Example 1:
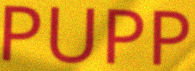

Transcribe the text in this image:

PUPP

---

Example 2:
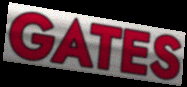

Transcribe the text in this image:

GATES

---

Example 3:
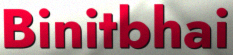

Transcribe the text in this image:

Binitbhai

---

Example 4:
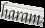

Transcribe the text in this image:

haram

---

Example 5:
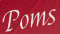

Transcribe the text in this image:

Poms